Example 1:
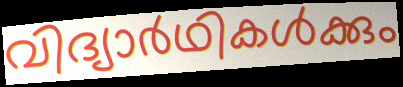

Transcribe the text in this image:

വിദ്യാർഥികൾക്കും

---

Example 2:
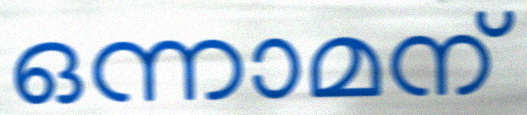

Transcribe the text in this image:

ഒന്നാമന്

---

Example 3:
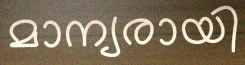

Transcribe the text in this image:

മാന്യരായി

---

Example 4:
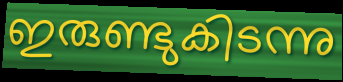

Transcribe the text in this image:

ഇരുണ്ടുകിടന്നു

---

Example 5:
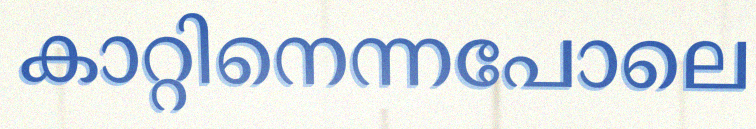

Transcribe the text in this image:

കാറ്റിനെന്നപോലെ